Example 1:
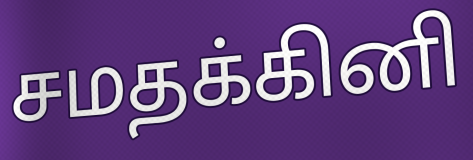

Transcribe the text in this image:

சமதக்கினி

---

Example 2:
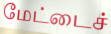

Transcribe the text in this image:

மேட்டைச்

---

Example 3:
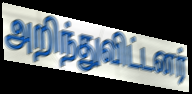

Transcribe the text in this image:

அறிந்துவிட்டனர்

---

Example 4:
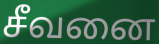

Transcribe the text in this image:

சீவனை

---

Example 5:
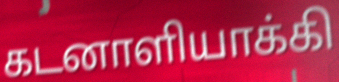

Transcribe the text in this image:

கடனாளியாக்கி